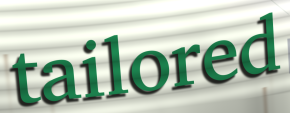
tailored